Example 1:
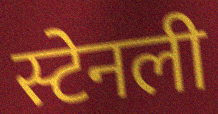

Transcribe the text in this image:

स्‍टेनली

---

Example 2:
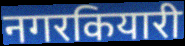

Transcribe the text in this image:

नगरकियारी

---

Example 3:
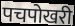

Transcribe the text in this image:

पचपोखरी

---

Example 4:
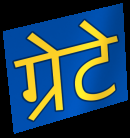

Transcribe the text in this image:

ग्रेटे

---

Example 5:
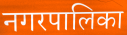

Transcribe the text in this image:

नगरपालिका